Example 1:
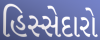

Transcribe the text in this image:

હિસ્સેદારો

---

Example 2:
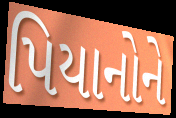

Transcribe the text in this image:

પિયાનોને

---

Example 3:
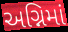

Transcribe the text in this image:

અગ્નિમાં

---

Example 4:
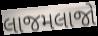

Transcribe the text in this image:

લાજમલાજો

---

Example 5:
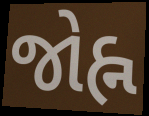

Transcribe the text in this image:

જોહ્ન